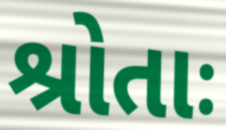
શ્રોતાઃ